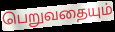
பெறுவதையும்